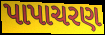
પાપાચરણ